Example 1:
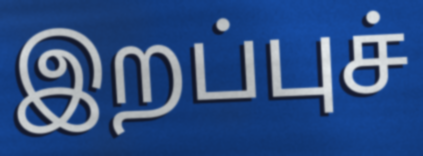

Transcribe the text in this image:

இறப்புச்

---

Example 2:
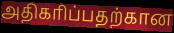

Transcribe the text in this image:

அதிகரிப்பதற்கான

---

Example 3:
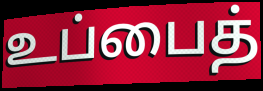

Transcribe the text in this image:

உப்பைத்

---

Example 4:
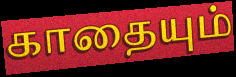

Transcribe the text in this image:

காதையும்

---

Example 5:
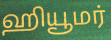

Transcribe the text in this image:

ஹியூமர்